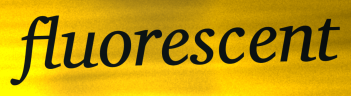
fluorescent